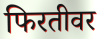
फिरतीवर